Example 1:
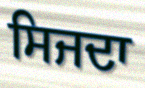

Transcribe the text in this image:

ਸਿਜਦਾ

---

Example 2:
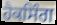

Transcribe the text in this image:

ਹੈਕਸਿੰਗ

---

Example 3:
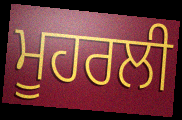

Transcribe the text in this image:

ਮੂਹਰਲੀ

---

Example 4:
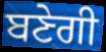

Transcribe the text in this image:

ਬਣੇਗੀ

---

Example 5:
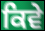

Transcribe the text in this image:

ਕਿਵੇ